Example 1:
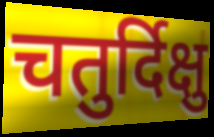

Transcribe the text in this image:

चतुर्दिक्षु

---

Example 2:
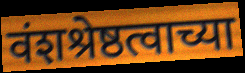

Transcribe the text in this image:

वंशश्रेष्ठत्वाच्या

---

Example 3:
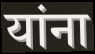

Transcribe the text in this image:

यांना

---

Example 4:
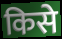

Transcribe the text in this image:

किसे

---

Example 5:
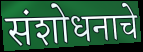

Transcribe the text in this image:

संशोधनाचे